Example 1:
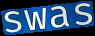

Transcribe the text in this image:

swas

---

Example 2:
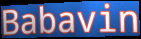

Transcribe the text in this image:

Babavin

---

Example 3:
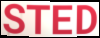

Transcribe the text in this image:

STED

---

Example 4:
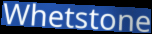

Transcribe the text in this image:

Whetstone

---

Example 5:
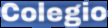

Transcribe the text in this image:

Colegio